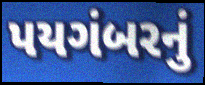
પયગંબરનું